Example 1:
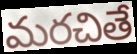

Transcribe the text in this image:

మరచితే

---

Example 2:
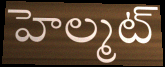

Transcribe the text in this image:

హెల్మట్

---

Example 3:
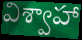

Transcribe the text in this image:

విశ్వాహా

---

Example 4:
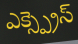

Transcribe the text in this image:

ఎక్స్ప్రెస్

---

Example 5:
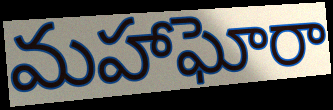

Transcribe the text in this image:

మహాఘోరా